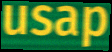
usap